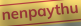
nenpaythu